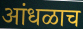
आंधळाच